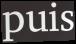
puis